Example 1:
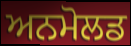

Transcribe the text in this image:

ਅਨਮੋਲਡ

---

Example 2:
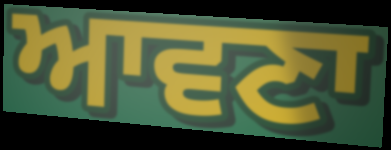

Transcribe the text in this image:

ਆਵਣਾ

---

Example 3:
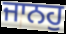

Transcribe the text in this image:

ਜਾਨਹੁ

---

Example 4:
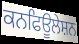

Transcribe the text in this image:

ਕਨਫਿਊਲੇਸ਼ਨ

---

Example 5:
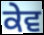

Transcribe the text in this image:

ਕੇਵ